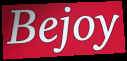
Bejoy